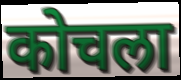
कोचला